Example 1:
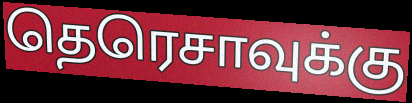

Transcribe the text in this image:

தெரெசாவுக்கு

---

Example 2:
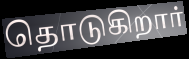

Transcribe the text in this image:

தொடுகிறார்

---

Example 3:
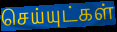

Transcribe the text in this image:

செய்யுட்கள்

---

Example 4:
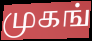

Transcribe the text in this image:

முகங்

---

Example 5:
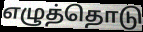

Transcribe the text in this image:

எழுத்தொடு